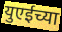
युएईच्या